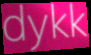
dykk